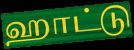
ஹாட்டு